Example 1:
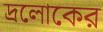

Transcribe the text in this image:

দ্রলোকের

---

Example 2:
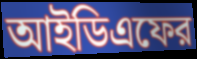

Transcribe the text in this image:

আইডিএফের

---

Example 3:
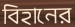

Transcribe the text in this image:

বিহানের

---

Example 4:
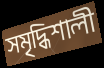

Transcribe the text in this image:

সমৃদ্ধিশালী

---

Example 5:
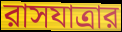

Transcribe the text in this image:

রাসযাত্রার